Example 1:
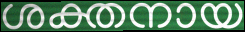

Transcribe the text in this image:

ശക്തനായ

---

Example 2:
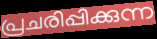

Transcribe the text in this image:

പ്രചരിപ്പിക്കുന്ന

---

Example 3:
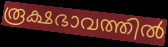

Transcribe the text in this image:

രൂക്ഷഭാവത്തിൽ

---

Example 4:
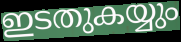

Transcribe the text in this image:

ഇടതുകയ്യും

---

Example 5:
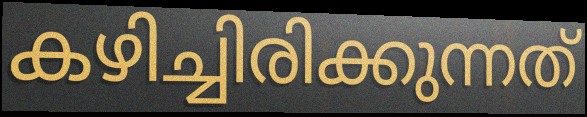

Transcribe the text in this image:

കഴിച്ചിരിക്കുന്നത്